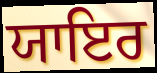
ਯਾਇਰ